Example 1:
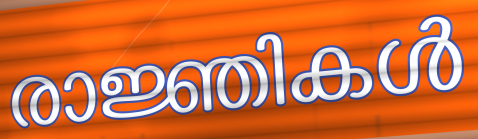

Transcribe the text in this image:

രാജ്ഞികൾ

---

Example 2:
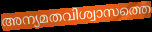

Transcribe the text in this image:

അന്യമതവിശ്വാസത്തെ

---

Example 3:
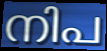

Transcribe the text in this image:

നിപ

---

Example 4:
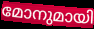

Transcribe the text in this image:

മോനുമായി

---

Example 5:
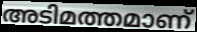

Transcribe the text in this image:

അടിമത്തമാണ്